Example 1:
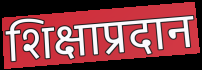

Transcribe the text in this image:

शिक्षाप्रदान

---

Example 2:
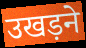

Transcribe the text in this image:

उखड़ने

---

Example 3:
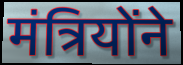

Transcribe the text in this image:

मंत्रियोंने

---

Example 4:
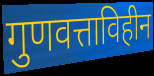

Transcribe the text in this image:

गुणवत्ताविहीन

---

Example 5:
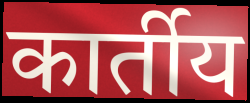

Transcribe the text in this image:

कार्तीय